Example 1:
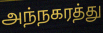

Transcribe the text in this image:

அந்நகரத்து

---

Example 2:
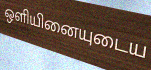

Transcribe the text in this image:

ஒளியினையுடைய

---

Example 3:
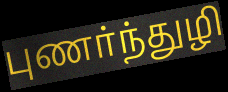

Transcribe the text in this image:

புணர்ந்துழி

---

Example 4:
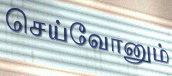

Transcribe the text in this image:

செய்வோனும்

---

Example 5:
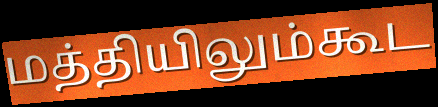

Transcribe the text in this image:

மத்தியிலும்கூட